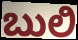
ಬುಲಿ